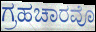
ಗ್ರಹಚಾರವೊ